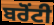
ਬਰੋਂਟੀ